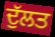
ਦੁੱਲਤ